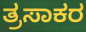
ತ್ರಸಾಕರ